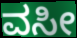
ವಸೀ